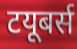
टयूबर्स